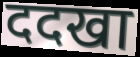
ददखा